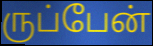
ருப்பேன்